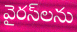
వైరస్‌లను